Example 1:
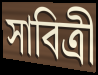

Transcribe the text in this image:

সাবিত্ৰী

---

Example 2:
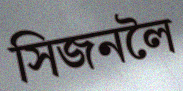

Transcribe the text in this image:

সিজনলৈ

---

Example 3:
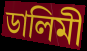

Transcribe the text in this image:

ডালিমী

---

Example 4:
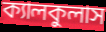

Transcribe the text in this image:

ক্যালকুলাস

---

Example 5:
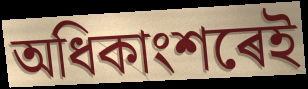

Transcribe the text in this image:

অধিকাংশৰেই